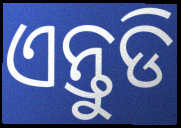
ଏନ୍ତୁଡି